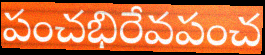
పంచభిరేవపంచ